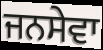
ਜਨਸੇਵਾ